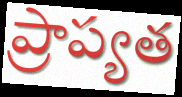
ప్రాప్యత